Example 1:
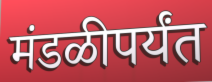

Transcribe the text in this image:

मंडळीपर्यंत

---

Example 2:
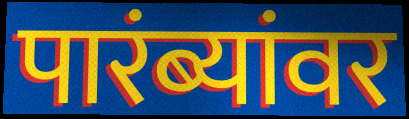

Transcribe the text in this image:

पारंब्यांवर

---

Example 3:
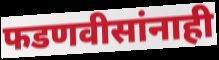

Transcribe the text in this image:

फडणवीसांनाही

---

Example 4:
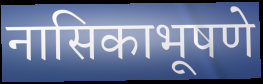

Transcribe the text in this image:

नासिकाभूषणे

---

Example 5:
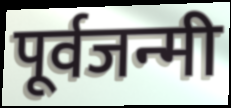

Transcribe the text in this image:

पूर्वजन्मी